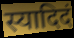
स्यादिदं